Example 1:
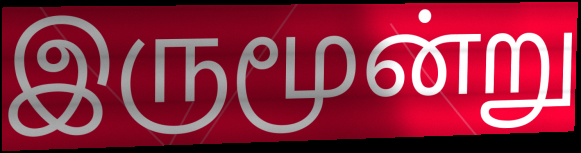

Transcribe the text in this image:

இருமூன்று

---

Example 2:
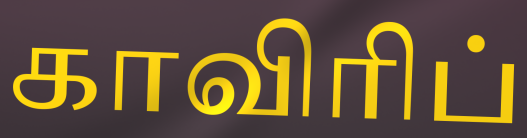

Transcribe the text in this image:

காவிரிப்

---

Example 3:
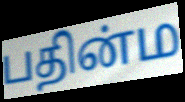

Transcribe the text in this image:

பதின்ம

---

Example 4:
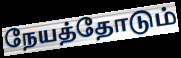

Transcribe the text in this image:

நேயத்தோடும்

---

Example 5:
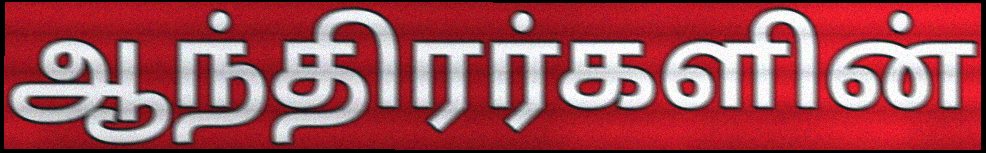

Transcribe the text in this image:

ஆந்திரர்களின்